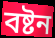
বষ্টন